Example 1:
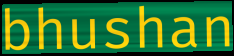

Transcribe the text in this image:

bhushan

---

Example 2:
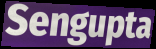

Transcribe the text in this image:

Sengupta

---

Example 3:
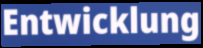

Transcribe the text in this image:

Entwicklung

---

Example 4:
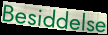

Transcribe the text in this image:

Besiddelse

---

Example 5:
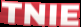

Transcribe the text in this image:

TNIE